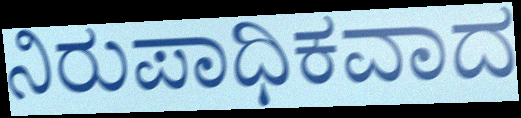
ನಿರುಪಾಧಿಕವಾದ